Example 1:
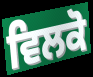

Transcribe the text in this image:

ਵਿਲਕੋ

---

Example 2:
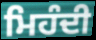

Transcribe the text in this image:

ਮਿਹੰਦੀ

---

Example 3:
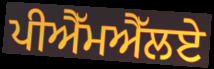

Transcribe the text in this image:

ਪੀਐੱਮਐੱਲਏ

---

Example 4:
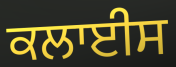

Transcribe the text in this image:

ਕਲਾਈਸ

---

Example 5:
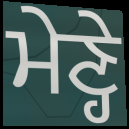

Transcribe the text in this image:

ਮੇਣ੍ਹੇ